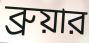
ব্রুয়ার